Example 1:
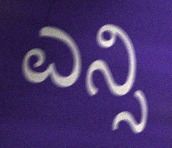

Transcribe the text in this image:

ಎನ್ಸಿ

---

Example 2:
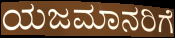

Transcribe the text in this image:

ಯಜಮಾನರಿಗೆ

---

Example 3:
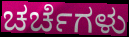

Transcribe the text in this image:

ಚರ್ಚೆಗಳು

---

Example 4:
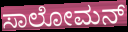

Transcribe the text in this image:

ಸಾಲೋಮನ್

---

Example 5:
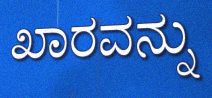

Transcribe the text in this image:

ಖಾರವನ್ನು